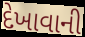
દેખાવાની